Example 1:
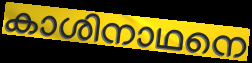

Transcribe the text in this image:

കാശിനാഥനെ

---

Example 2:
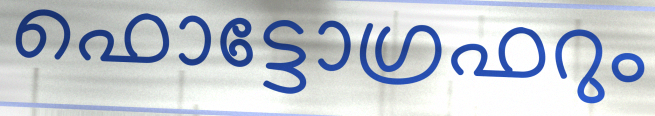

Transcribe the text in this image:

ഫൊട്ടോഗ്രഫറും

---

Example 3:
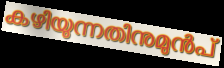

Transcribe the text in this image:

കഴിയുന്നതിനുമുൻപ്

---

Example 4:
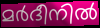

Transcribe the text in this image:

മർദീനിൽ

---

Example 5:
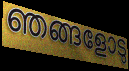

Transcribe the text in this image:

ഞങ്ങളോടു